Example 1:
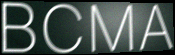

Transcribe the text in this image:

BCMA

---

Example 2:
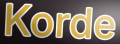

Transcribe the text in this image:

Korde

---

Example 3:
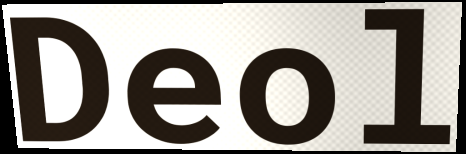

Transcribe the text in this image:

Deol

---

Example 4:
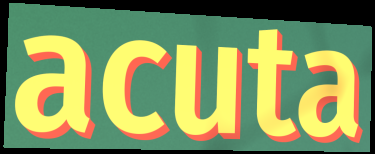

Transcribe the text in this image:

acuta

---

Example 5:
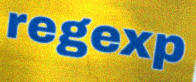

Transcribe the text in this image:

regexp